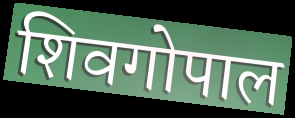
शिवगोपाल